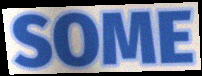
SOME